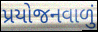
પ્રયોજનવાળું